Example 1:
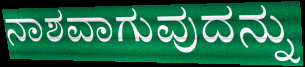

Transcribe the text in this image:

ನಾಶವಾಗುವುದನ್ನು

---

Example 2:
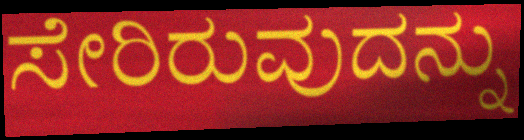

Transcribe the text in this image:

ಸೇರಿರುವುದನ್ನು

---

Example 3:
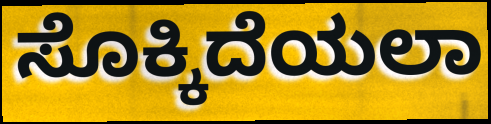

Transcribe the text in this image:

ಸೊಕ್ಕಿದೆಯಲಾ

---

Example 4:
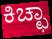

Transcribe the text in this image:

ಕಿಚ್ಛಾ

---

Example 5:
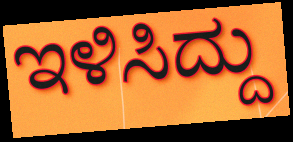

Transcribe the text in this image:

ಇಳಿಸಿದ್ದು